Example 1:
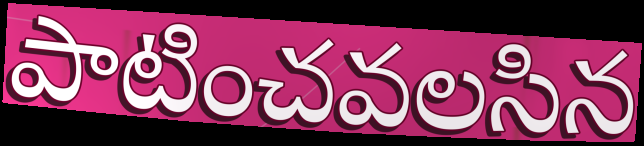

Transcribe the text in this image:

పాటించవలసిన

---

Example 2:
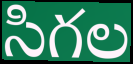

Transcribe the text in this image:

సిగల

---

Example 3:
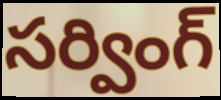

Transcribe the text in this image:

సర్వింగ్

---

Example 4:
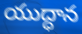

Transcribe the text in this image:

యుద్ధాన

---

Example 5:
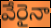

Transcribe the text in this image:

వేరైనా